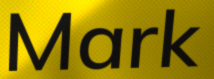
Mark